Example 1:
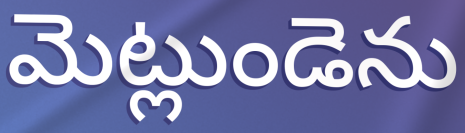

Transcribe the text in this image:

మెట్లుండెను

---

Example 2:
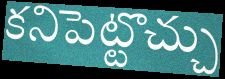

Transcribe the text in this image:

కనిపెట్టొచ్చు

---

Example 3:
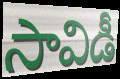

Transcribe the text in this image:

సావిడీ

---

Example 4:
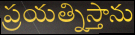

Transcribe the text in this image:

ప్రయత్నిస్తాను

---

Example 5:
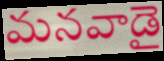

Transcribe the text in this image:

మనవాడై